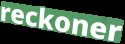
reckoner